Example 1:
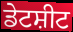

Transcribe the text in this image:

ਡੇਟਸ਼ੀਟ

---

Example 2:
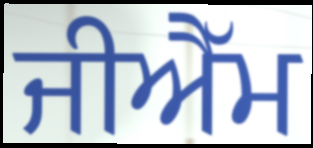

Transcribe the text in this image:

ਜੀਐੱਮ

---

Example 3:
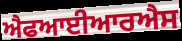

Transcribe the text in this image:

ਐਫਆਈਆਰਐਸ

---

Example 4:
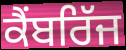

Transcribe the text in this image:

ਕੈਂਬਰਿੱਜ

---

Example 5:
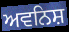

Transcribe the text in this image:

ਅਵਨਿਸ਼